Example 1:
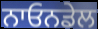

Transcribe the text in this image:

ਨਾਓਨਡੇਲ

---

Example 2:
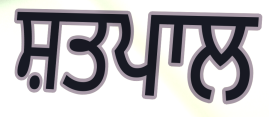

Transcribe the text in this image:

ਸ਼ਤਪਾਲ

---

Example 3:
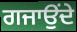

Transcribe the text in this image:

ਗਜਾਉਂਦੇ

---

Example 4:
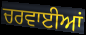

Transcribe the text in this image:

ਚਰਵਾਈਆਂ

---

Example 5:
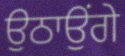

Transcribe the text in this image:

ਉਠਾਉਂਗੇ